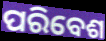
ପରିବେଶ